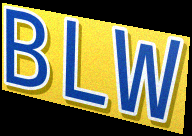
BLW